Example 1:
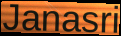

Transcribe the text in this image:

Janasri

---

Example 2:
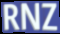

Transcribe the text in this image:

RNZ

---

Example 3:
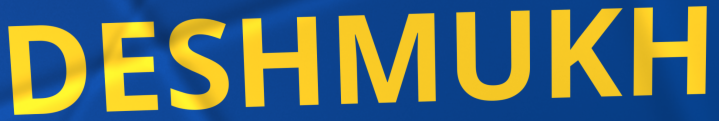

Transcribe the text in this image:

DESHMUKH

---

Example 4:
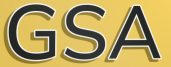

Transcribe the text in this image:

GSA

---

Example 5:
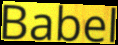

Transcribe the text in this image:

Babel